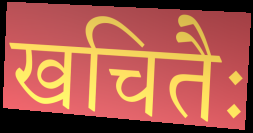
खचितैः